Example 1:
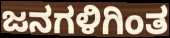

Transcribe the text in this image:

ಜನಗಳಿಗಿಂತ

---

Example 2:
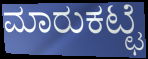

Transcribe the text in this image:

ಮಾರುಕಟ್ಟೆ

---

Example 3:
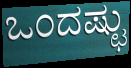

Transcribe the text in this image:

ಒಂದಷ್ಟು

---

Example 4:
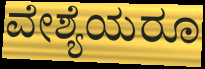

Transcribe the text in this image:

ವೇಶ್ಯೆಯರೂ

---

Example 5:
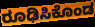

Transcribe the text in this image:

ರೂಢಿಸಿಕೊಂಡ